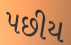
પછીય